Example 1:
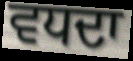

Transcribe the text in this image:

ਵਧਦਾ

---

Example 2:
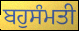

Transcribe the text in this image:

ਬਹੁਸੰਮਤੀ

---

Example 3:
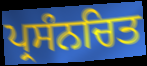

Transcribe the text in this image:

ਪ੍ਰਸੰਨਚਿਤ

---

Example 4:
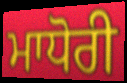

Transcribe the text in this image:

ਮਾਧੋਰੀ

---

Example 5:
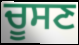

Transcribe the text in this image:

ਚੂਸਣ